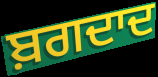
ਬ਼ਗਦਾਦ